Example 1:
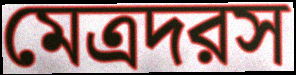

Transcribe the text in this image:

মেত্রদরস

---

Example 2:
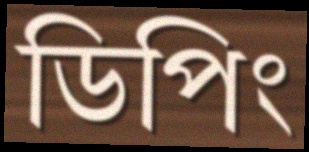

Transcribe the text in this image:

ডিপিং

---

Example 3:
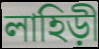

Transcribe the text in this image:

লাহিড়ী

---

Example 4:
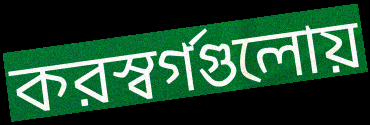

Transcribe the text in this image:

করস্বর্গগুলোয়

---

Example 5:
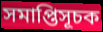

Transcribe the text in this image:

সমাপ্তিসূচক